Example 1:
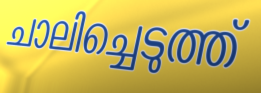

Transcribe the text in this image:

ചാലിച്ചെടുത്ത്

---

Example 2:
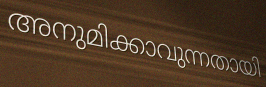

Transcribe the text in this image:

അനുമിക്കാവുന്നതായി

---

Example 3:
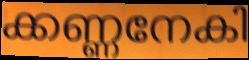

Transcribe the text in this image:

ക്കണ്ണനേകി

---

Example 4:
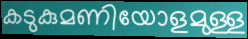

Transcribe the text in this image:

കടുകുമണിയോളമുള്ള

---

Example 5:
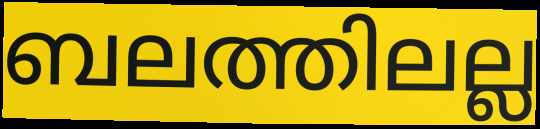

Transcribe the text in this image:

ബലത്തിലല്ല